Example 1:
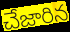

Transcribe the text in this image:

చేజారిన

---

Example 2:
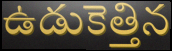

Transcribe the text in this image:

ఉడుకెత్తిన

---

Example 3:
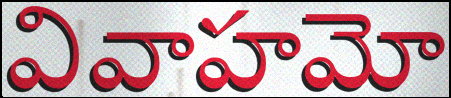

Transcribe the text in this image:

వివాహమో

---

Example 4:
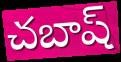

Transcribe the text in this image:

చబాష్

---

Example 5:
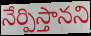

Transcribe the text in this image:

నేర్పిస్తానని